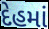
દેહમાં